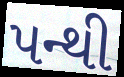
પન્થી